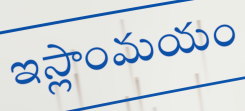
ఇస్లాంమయం